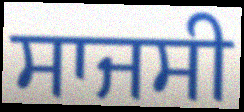
ਸਾਜਸੀ